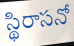
స్థిరాసనో